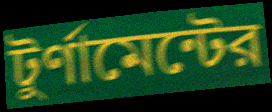
টুর্ণামেন্টের